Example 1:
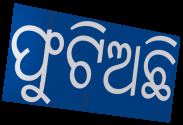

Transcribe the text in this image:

ଫୁଟିଅଛି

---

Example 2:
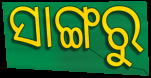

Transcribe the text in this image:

ସାଙ୍ଗରୁ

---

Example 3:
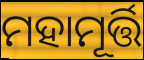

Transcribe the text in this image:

ମହାମୂର୍ତ୍ତି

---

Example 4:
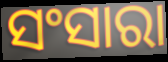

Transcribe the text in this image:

ସଂସାରା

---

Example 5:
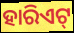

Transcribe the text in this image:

ହାରିଏଟ୍